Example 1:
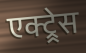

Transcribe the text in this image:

एक्ट्र्रेस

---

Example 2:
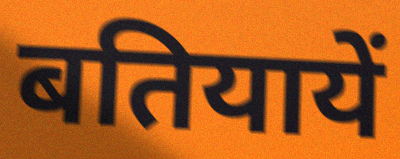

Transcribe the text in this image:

बतियायें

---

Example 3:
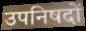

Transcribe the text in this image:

उपनिषदों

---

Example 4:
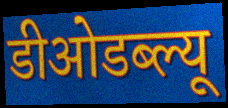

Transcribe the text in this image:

डीओडब्ल्यू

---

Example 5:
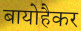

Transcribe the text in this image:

बायोहैकर